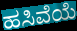
ಹಸಿವೆಯೆ